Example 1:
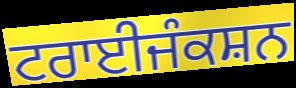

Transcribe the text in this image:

ਟਰਾਈਜੰਕਸ਼ਨ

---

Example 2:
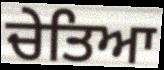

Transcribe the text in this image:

ਚੇਤਿਆ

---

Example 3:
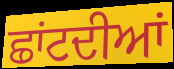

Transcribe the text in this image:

ਛਾਂਟਦੀਆਂ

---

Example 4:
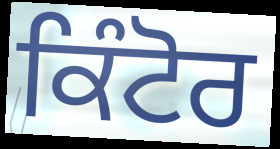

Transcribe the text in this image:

ਕਿੰਟੋਰ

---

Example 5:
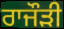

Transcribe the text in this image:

ਰਾਜੌੜੀ